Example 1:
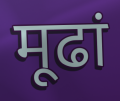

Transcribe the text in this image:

मूढां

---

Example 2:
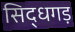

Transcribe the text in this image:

सिद्धगड़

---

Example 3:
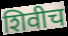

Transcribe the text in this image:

शिवीच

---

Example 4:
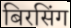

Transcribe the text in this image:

बिरसिंग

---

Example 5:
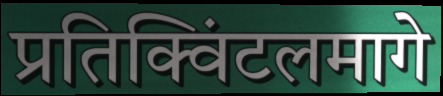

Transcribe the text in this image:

प्रतिक्विंटलमागे